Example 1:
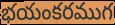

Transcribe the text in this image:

భయంకరముగ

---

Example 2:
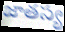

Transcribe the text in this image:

జాతస్య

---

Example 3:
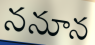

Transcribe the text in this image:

ననూన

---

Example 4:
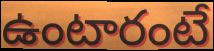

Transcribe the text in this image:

ఉంటారంటే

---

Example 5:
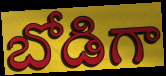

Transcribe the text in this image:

బోడిగా